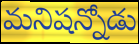
మనిషన్నోడు